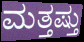
ಮತ್ತಷ್ತು